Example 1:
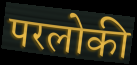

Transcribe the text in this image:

परलोकी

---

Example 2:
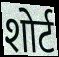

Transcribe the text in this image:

शोर्ट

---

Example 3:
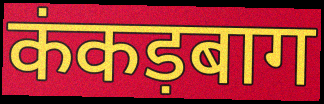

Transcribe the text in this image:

कंकड़बाग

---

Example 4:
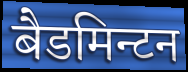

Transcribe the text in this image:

बैडमिन्टन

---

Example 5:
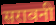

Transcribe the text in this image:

सरावनी